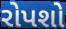
રોપશો